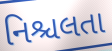
નિશ્ચલતા